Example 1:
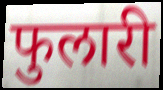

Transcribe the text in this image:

फुलारी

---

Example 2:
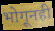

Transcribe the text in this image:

भोगूनही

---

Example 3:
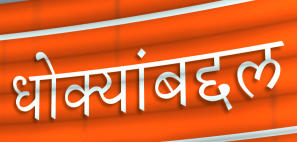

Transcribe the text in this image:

धोक्यांबद्दल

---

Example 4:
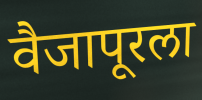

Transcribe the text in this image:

वैजापूरला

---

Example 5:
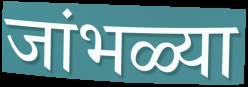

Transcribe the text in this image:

जांभळ्या